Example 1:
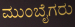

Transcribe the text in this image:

ಮುಂಬೈಗರು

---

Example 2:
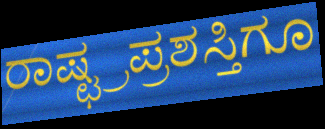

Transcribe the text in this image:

ರಾಷ್ಟ್ರಪ್ರಶಸ್ತಿಗೂ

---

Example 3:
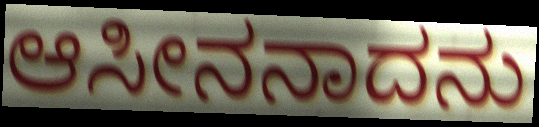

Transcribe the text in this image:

ಆಸೀನನಾದನು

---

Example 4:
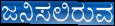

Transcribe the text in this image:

ಜನಿಸಲಿರುವ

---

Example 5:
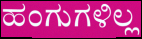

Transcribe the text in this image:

ಹಂಗುಗಳಿಲ್ಲ